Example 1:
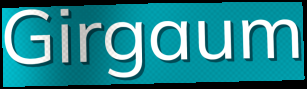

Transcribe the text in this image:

Girgaum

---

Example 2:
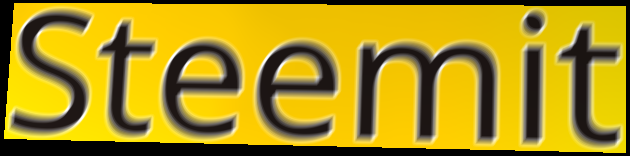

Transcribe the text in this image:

Steemit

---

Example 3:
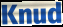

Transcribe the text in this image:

Knud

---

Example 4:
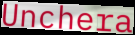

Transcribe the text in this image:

Unchera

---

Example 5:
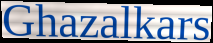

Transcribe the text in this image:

Ghazalkars